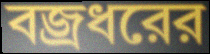
বজ্রধরের